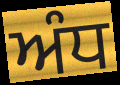
ਅੰਧ